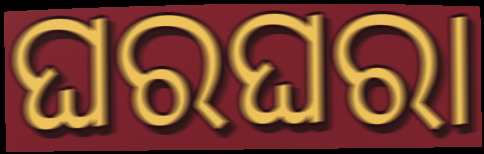
ଘରଘରା